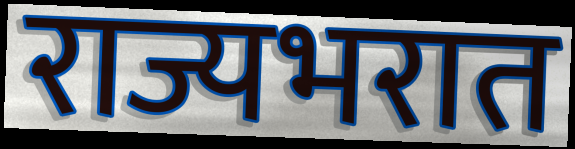
राज्यभरात